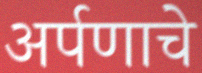
अर्पणाचे